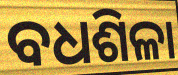
ବଧଶିଳା